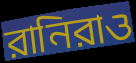
রানিরাও